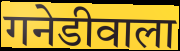
गनेडीवाला